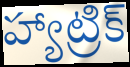
హ్యాట్రిక్